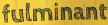
fulminant